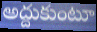
అద్దుకుంటూ